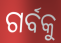
ଗର୍ବକୁ